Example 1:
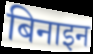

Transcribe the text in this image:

बिनाइन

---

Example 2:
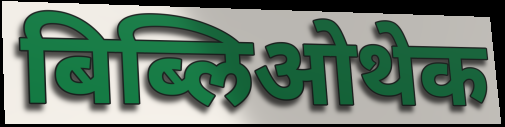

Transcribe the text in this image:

बिब्लिओथेक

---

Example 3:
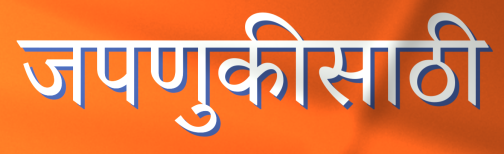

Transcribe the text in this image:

जपणुकीसाठी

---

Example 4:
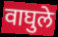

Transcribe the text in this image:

वाघुले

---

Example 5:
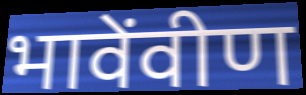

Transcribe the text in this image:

भावेंवीण